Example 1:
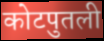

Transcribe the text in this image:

कोटपुतली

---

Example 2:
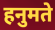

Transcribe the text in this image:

हनुमते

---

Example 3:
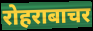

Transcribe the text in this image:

रोहराबाचर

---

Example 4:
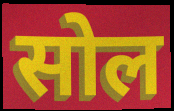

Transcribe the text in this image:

सोल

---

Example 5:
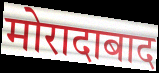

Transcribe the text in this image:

मोरादाबाद